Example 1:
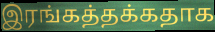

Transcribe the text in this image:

இரங்கத்தக்கதாக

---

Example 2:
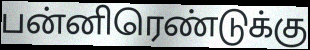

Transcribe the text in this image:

பன்னிரெண்டுக்கு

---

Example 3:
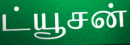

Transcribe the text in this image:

ட்யூசன்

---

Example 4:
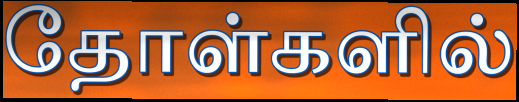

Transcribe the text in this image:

தோள்களில்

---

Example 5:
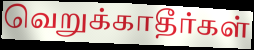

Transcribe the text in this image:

வெறுக்காதீர்கள்